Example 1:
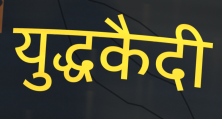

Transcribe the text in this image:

युद्धकैदी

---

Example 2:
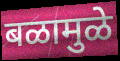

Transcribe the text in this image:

बळामुळे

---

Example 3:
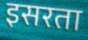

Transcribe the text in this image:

इसरता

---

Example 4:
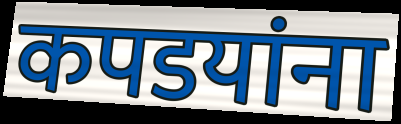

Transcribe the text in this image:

कपडयांना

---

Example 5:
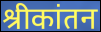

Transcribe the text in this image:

श्रीकांतन